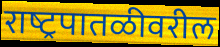
राष्ट्रपातळीवरील